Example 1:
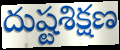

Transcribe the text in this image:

దుష్టశిక్షణ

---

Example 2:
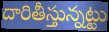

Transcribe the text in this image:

దారితీస్తున్నట్టు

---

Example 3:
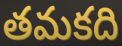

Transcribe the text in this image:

తమకది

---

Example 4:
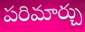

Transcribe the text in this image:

పరిమార్చు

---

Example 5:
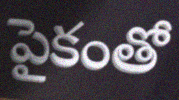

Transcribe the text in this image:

పైకంతో